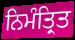
ਨਿਮੰਤ੍ਰਿਤ